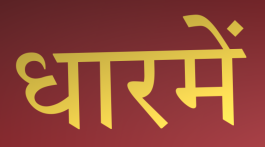
धारमें